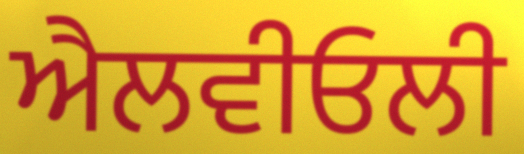
ਐਲਵੀਓਲੀ